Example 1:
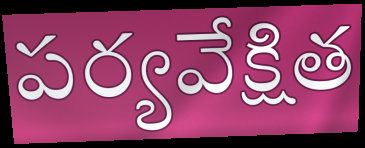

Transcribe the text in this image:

పర్యవేక్షిత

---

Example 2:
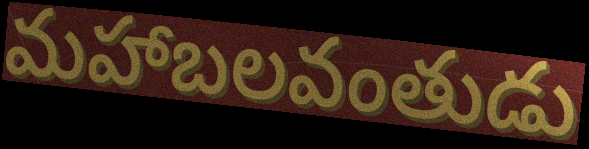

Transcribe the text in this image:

మహాబలవంతుడు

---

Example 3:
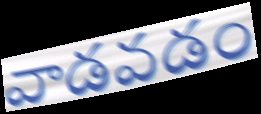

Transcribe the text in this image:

వాడవడం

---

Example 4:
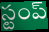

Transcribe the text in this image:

స్టంప్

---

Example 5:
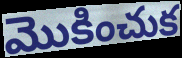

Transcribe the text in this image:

మొకించుక